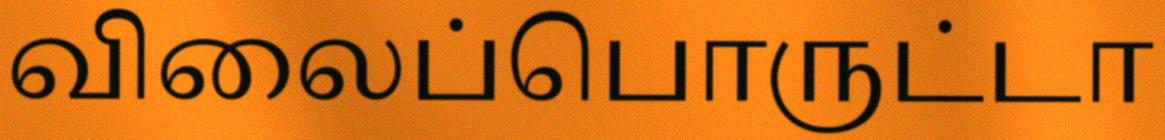
விலைப்பொருட்டா